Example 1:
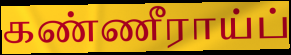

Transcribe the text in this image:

கண்ணீராய்ப்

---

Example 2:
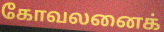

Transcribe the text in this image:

கோவலனைக்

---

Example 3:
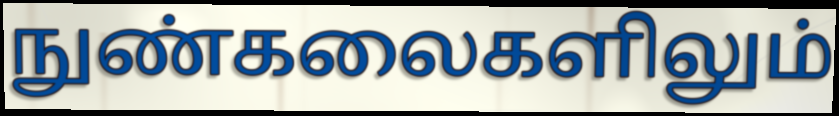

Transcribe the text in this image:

நுண்கலைகளிலும்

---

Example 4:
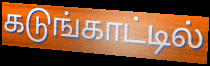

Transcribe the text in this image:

கடுங்காட்டில்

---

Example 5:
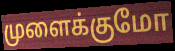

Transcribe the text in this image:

முளைக்குமோ